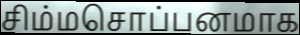
சிம்மசொப்பனமாக